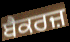
ਬੈਕਰਜ਼